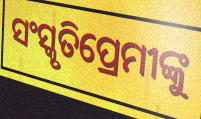
ସଂସ୍କୃତିପ୍ରେମୀଙ୍କୁ